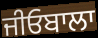
ਜੀਓਬਾਲਾ